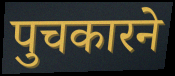
पुचकारने